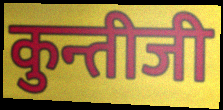
कुन्तीजी